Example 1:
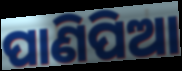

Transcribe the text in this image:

ପାଣିପିଆ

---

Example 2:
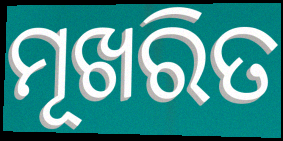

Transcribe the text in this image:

ମୂଖରିତ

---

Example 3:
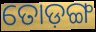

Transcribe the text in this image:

ତୋଡ଼ଙ୍ଗ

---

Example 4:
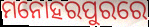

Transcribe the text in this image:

ମନୋହରପୁରରେ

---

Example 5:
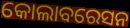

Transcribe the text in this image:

କୋଲାବରେସନ